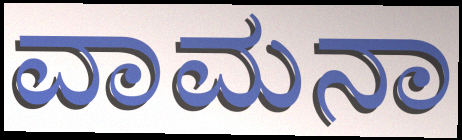
ವಾಮನಾ